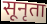
सूनृता